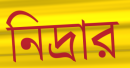
নিদ্রার